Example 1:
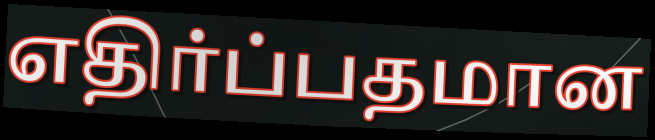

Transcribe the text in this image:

எதிர்ப்பதமான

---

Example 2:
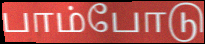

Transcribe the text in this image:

பாம்போடு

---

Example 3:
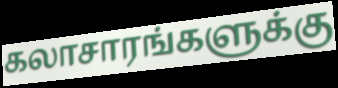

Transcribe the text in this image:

கலாசாரங்களுக்கு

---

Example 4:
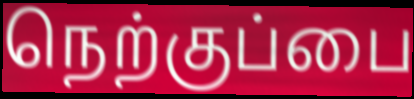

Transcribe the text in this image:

நெற்குப்பை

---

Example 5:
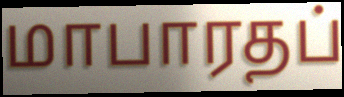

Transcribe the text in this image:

மாபாரதப்